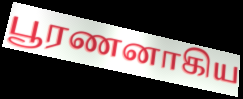
பூரணனாகிய